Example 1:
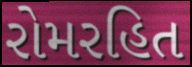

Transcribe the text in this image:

રોમરહિત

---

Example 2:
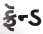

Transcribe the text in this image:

ફ્રૅન્ડ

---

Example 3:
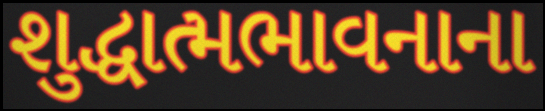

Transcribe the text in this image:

શુદ્ધાત્મભાવનાના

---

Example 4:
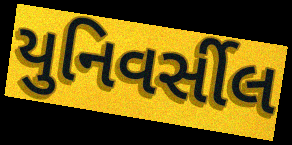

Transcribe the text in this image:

યુનિવર્સીલ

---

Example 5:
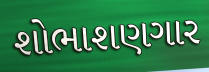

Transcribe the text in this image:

શોભાશણગાર